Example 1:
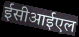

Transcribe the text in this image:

ईसीआईएल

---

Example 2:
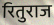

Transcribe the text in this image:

रितुराज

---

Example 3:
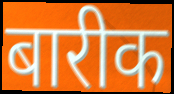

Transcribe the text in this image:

बारीक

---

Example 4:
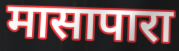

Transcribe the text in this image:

मासापारा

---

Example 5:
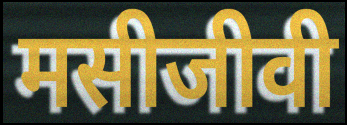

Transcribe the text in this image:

मसीजीवी